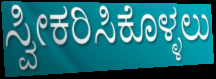
ಸ್ವೀಕರಿಸಿಕೊಳ್ಳಲು